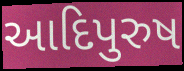
આદિપુરુષ